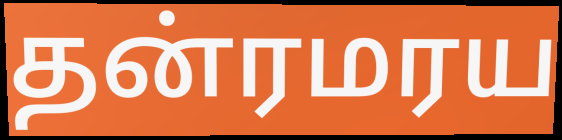
தன்ரமரய